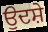
ਉਦਸ਼ੇ